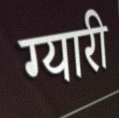
ग्यारी